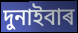
দুনাইবাৰ